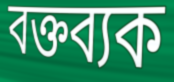
বক্তব্যক